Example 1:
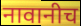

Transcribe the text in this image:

नावानीच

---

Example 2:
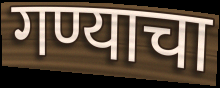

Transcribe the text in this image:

गण्याचा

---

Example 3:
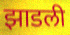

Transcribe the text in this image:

झाडली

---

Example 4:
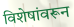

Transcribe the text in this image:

विशेषांवरून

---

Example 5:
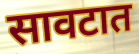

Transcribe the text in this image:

सावटात